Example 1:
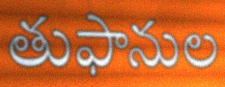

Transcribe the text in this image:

తుఫానుల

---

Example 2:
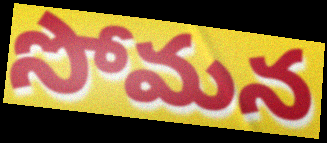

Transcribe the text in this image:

సోమన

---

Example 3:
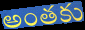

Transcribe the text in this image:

అంతకు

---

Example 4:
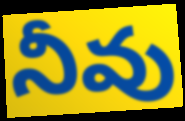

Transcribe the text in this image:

నీవు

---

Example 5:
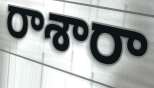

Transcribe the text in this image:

రాశారా